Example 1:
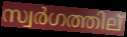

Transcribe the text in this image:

സ്വർഗത്തില്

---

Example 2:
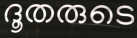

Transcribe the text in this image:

ദൂതരുടെ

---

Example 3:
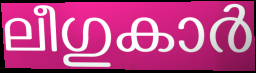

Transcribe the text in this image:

ലീഗുകാർ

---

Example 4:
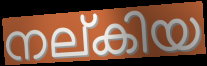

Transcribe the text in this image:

നല്കിയ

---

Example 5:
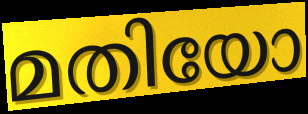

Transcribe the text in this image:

മതിയോ